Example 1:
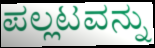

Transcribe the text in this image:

ಪಲ್ಲಟವನ್ನು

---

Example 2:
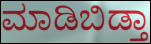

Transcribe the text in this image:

ಮಾಡಿಬಿಡ್ತಾ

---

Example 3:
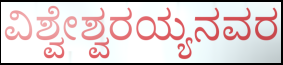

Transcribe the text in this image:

ವಿಶ್ವೇಶ್ವರಯ್ಯನವರ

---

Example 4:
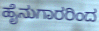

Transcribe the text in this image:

ಹೈನುಗಾರರಿಂದ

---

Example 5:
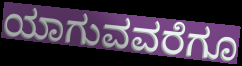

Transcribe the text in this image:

ಯಾಗುವವರೆಗೂ